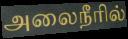
அலைநீரில்